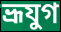
ভ্রূযুগ